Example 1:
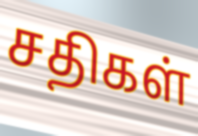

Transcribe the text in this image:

சதிகள்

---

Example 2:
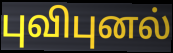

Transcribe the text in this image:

புவிபுனல்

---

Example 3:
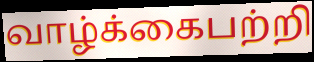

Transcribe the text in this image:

வாழ்க்கைபற்றி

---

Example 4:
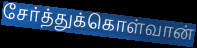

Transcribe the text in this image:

சேர்த்துக்கொள்வான்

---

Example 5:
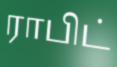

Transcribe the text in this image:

ராபிட்